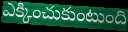
ఎక్కించుకుంటుంది